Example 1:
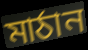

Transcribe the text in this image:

মাঠান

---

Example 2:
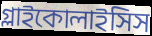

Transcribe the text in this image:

গ্লাইকোলাইসিস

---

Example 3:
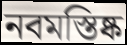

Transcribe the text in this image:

নবমস্তিষ্ক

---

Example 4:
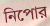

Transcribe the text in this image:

নিপোর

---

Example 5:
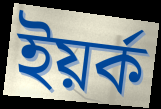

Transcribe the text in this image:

ইয়র্ক